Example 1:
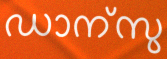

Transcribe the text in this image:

ഡാന്സു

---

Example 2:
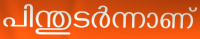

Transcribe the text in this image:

പിന്തുടർന്നാണ്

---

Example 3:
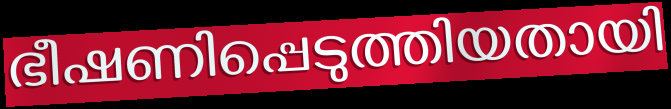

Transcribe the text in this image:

ഭീഷണിപ്പെടുത്തിയതായി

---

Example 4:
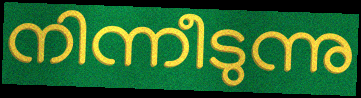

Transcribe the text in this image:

നിന്നീടുന്നു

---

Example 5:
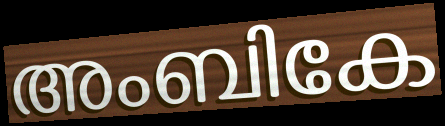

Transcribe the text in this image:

അംബികേ